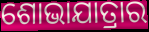
ଶୋଭାଯାତ୍ରାର